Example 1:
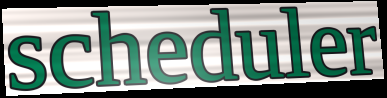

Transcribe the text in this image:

scheduler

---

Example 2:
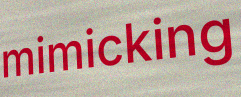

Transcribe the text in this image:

mimicking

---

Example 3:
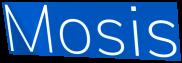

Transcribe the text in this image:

Mosis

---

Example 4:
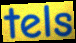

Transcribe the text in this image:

tels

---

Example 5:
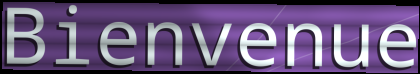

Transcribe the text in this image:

Bienvenue